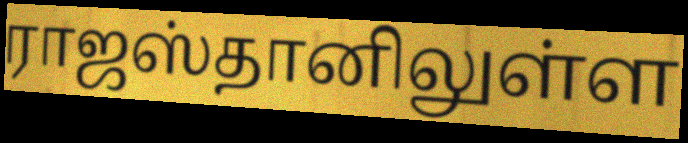
ராஜஸ்தானிலுள்ள